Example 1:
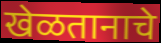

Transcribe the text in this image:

खेळतानाचे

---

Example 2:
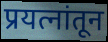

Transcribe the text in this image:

प्रयत्नांतून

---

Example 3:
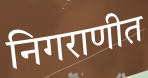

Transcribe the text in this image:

निगराणीत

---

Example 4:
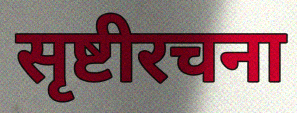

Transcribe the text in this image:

सृष्टीरचना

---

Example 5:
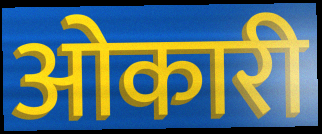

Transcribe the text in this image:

ओकारी